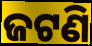
ଜଟଣି